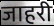
जाहरी